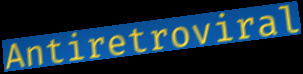
Antiretroviral